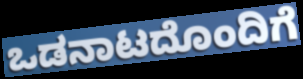
ಒಡನಾಟದೊಂದಿಗೆ